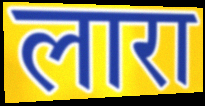
लारा